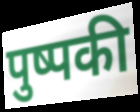
पुष्पकी